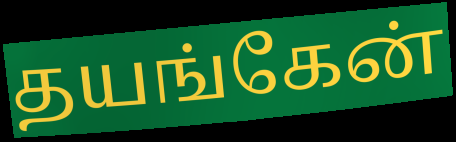
தயங்கேன்